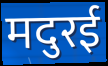
मदुरई